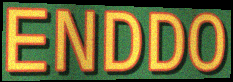
ENDDO